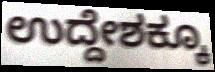
ಉದ್ದೇಶಕ್ಕೂ